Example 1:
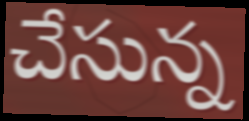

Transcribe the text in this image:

చేసున్న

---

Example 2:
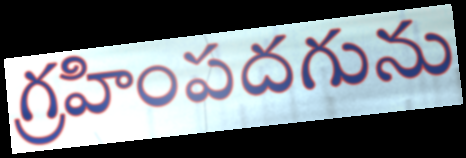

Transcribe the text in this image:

గ్రహింపదగును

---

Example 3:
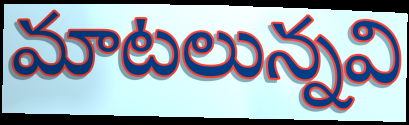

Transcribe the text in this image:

మాటలున్నవి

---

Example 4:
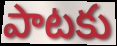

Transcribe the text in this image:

పాటకు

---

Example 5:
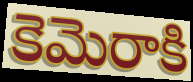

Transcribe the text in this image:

కెమెరాకి